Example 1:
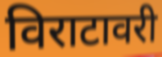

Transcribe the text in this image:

विराटावरी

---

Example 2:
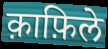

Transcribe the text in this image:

क़ाफ़िले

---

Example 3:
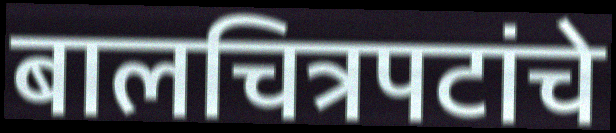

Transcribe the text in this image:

बालचित्रपटांचे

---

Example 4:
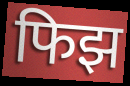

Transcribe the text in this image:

फिझ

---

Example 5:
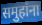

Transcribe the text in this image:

समुहांना